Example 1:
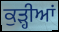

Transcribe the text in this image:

ਕੁੜ੍ਹੀਆਂ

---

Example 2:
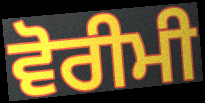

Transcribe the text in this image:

ਵੋਰੀਮੀ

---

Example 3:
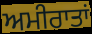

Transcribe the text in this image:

ਅਮੀਰਾਤਾਂ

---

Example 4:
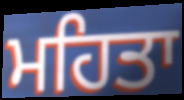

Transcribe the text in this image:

ਮਹਿਤਾ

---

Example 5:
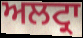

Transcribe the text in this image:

ਅਲਟ੍ਰਾ